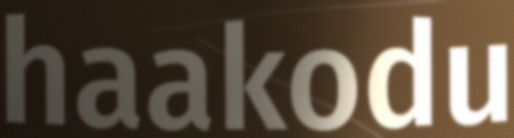
haakodu